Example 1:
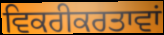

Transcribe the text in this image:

ਵਿਕਰੀਕਰਤਾਵਾਂ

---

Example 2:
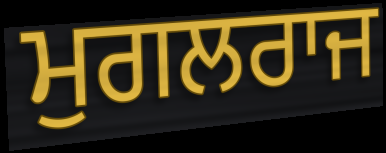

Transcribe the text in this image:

ਮੁਗਲਰਾਜ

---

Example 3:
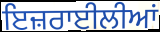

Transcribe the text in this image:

ਇਜ਼ਰਾਈਲੀਆਂ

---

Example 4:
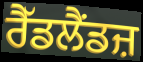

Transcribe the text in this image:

ਰੈੱਡਲੈਂਡਜ਼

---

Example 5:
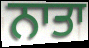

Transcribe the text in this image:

ਨਾਤਾ